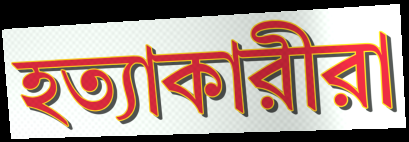
হত্যাকারীরা